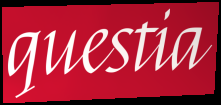
questia